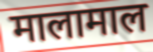
मालामाल